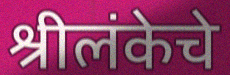
श्रीलंकेचे